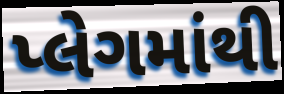
પ્લેગમાંથી